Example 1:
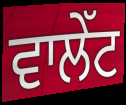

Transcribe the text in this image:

ਵਾਲੇੱਟ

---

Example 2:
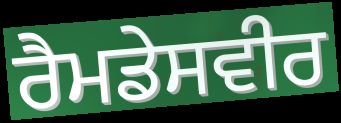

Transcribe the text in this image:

ਰੈਮਡੇਸਵੀਰ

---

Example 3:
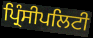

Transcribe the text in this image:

ਪ੍ਰਿੰਸੀਪਲਿਟੀ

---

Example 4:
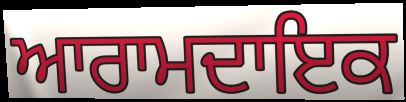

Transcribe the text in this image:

ਆਰਾਮਦਾਇਕ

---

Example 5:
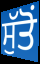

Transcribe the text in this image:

ਸੁੱਤੋਂ